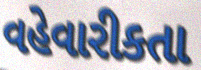
વહેવારીકતા